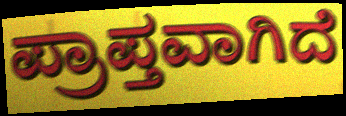
ಪ್ರಾಪ್ತವಾಗಿದೆ